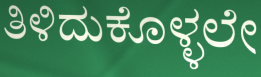
ತಿಳಿದುಕೊಳ್ಳಲೇ